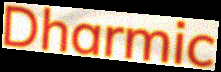
Dharmic